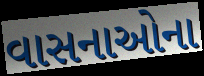
વાસનાઓના